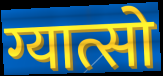
ग्यात्सो